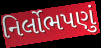
નિર્લોભપણું